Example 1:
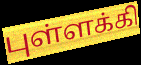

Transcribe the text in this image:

புள்ளக்கி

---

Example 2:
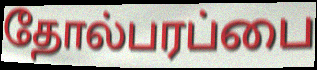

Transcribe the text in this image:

தோல்பரப்பை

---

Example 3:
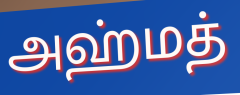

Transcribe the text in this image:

அஹ்மத்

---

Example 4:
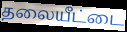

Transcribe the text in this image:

தலையீட்டை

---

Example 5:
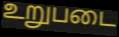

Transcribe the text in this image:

உறுபடை